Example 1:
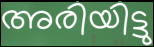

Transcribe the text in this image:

അരിയിട്ടു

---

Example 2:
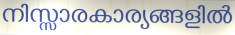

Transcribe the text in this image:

നിസ്സാരകാര്യങ്ങളിൽ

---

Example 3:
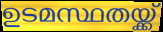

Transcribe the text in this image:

ഉടമസ്ഥതയ്ക്ക്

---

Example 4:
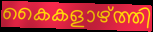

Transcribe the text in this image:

കൈകളാഴ്ത്തി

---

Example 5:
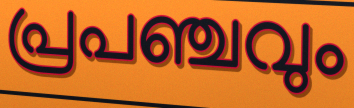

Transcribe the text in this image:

പ്രപഞ്ചവും